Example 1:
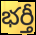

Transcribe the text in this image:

భర్తీ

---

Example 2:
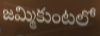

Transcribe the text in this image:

జమ్మికుంటలో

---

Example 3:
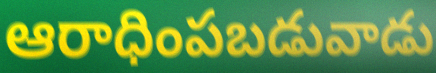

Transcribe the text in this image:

ఆరాధింపబడువాడు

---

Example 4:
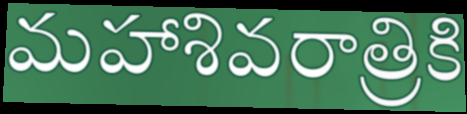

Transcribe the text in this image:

మహాశివరాత్రికి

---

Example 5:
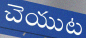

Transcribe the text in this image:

చెయుట